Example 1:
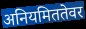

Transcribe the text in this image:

अनियमिततेवर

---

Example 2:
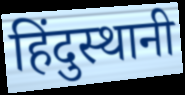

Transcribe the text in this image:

हिंदुस्थानी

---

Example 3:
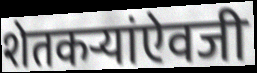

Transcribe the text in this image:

शेतकऱ्यांऐवजी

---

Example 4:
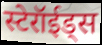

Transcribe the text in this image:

स्टेरॉईड्स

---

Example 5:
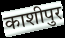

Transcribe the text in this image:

काशीपुर